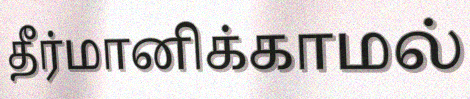
தீர்மானிக்காமல்